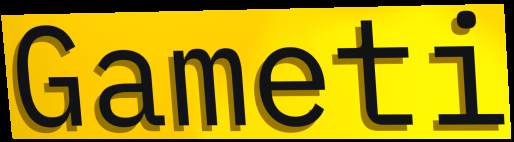
Gameti